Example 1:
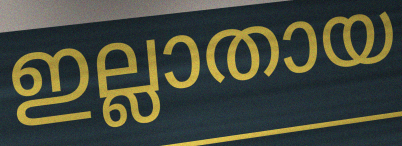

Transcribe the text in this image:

ഇല്ലാതായ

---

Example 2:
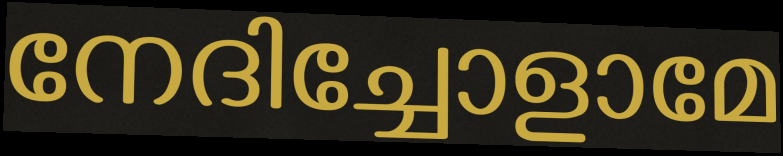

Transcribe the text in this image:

നേദിച്ചോളാമേ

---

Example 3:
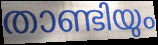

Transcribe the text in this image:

താണ്ടിയും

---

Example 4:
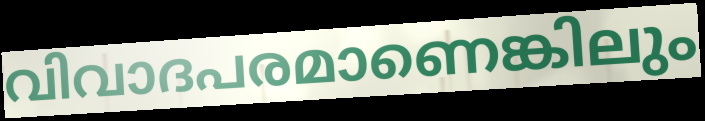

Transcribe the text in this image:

വിവാദപരമാണെങ്കിലും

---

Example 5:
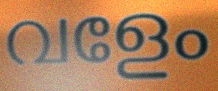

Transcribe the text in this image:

വളേം